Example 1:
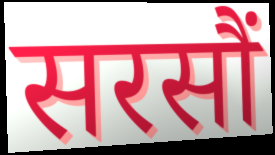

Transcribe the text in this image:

सरसौं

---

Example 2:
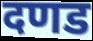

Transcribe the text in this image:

दणड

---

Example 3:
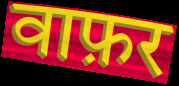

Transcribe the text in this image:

वाफ़र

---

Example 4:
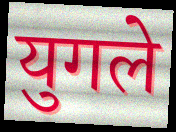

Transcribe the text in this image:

युगले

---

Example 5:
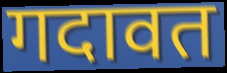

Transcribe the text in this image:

गदावत